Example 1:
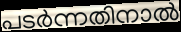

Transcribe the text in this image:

പടർന്നതിനാൽ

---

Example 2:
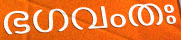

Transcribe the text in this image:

ഭഗവംതഃ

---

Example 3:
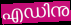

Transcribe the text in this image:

എഡിനു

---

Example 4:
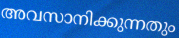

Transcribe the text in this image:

അവസാനിക്കുന്നതും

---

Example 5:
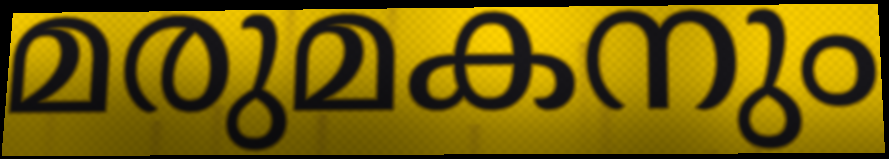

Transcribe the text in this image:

മരുമകനും